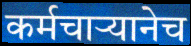
कर्मचाऱ्यानेच